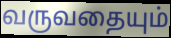
வருவதையும்